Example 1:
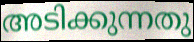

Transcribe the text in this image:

അടിക്കുന്നതു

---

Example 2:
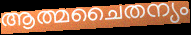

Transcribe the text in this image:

ആത്മചൈതന്യം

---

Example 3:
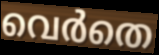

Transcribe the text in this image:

വെർതെ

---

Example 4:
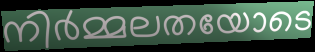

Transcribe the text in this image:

നിർമ്മലതയോടെ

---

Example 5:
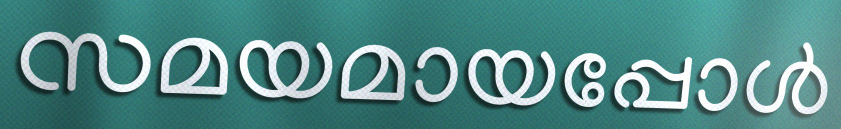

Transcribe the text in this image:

സമയമായപ്പോൾ